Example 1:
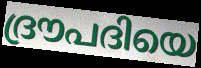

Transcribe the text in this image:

ദ്രൗപദിയെ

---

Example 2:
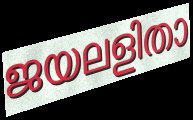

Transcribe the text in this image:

ജയലളിതാ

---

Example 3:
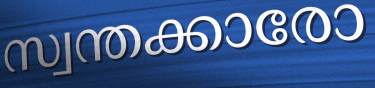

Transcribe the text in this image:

സ്വന്തക്കാരോ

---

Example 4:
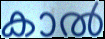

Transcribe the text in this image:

കാൽ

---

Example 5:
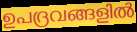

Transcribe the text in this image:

ഉപദ്രവങ്ങളിൽ